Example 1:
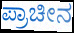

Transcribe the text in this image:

ಪ್ರಾಚೀನ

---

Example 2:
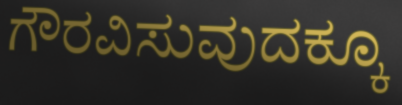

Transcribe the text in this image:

ಗೌರವಿಸುವುದಕ್ಕೂ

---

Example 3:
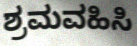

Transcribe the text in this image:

ಶ್ರಮವಹಿಸಿ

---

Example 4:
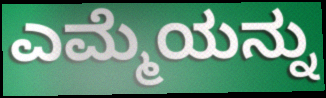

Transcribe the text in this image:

ಎಮ್ಮೆಯನ್ನು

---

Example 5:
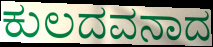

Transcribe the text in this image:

ಕುಲದವನಾದ